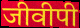
जीवीपी